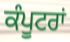
ਕੰਪੂਟਰਾਂ